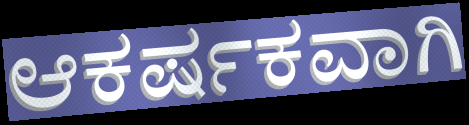
ಆಕರ್ಷಕವಾಗಿ